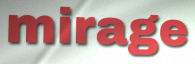
mirage